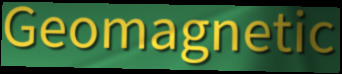
Geomagnetic